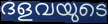
ദളവയുടെ